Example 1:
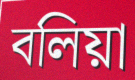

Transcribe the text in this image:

বলিয়া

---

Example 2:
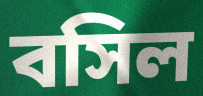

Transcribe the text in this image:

বসিল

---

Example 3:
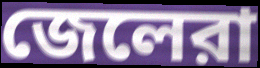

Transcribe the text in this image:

জেলেরা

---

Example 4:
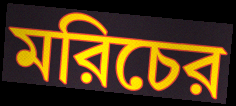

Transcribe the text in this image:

মরিচের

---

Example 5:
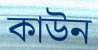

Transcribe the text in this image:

কাউন